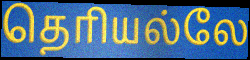
தெரியல்லே